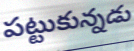
పట్టుకున్నడు